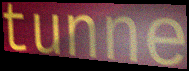
tunne